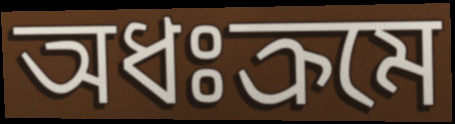
অধঃক্রমে